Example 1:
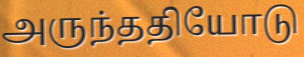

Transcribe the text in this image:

அருந்ததியோடு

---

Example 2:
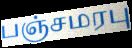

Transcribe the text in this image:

பஞ்சமரபு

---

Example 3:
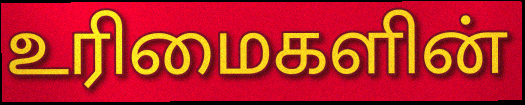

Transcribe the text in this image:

உரிமைகளின்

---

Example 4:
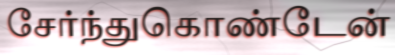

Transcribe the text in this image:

சேர்ந்துகொண்டேன்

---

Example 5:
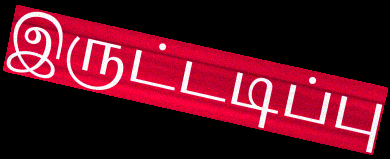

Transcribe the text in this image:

இருட்டடிப்பு